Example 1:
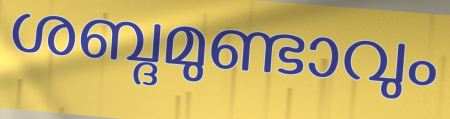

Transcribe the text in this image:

ശബ്ദമുണ്ടാവും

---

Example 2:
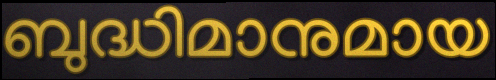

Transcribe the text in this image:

ബുദ്ധിമാനുമായ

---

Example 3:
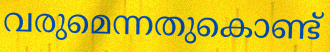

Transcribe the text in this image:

വരുമെന്നതുകൊണ്ട്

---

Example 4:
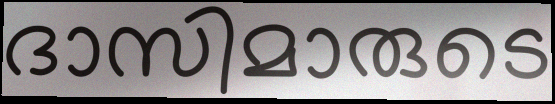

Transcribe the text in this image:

ദാസിമാരുടെ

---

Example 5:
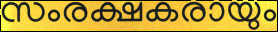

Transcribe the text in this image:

സംരക്ഷകരായും